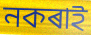
নকৰাই